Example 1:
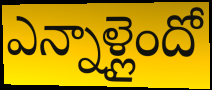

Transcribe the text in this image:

ఎన్నాళ్లైందో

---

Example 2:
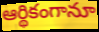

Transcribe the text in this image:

ఆర్థికంగానూ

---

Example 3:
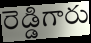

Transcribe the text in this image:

రెడ్డిగారు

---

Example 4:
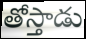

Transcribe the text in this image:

తోస్తాడు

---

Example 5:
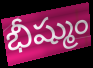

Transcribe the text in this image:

భీష్ముం